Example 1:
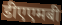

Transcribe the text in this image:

डीएएमबी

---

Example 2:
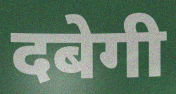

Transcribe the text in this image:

दबेगी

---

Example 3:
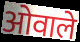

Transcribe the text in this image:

ओवाले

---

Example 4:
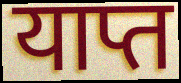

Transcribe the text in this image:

याप्त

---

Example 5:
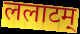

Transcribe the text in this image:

ललाटम्